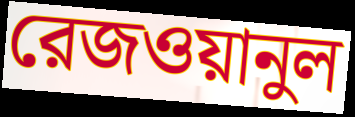
রেজওয়ানুল